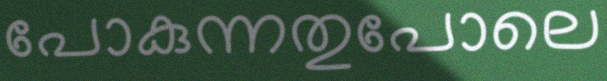
പോകുന്നതുപോലെ